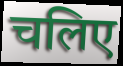
चलिए